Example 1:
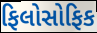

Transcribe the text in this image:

ફિલોસોફિક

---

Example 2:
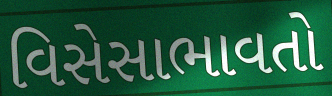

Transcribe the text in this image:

વિસેસાભાવતો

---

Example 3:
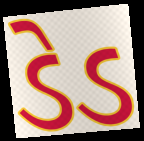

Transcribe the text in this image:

ડેડ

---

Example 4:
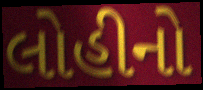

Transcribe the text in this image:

લોહીનો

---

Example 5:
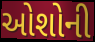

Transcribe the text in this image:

ઓશોની